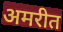
अमरीत